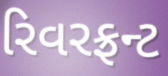
રિવરફ્રન્ટ